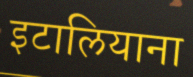
इटालियाना